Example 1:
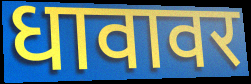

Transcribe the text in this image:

धावावर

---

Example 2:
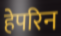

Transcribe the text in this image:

हेपरिन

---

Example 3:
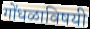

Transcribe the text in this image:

गोंधळाविषयी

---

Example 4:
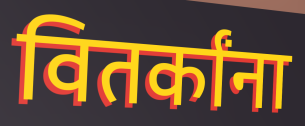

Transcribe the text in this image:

वितर्कांना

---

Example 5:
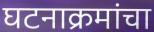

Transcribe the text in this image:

घटनाक्रमांचा